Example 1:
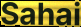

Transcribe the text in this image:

Sahai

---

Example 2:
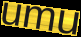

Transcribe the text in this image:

umu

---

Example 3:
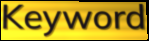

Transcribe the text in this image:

Keyword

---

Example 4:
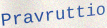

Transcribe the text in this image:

Pravruttio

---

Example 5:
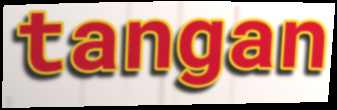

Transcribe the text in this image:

tangan